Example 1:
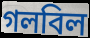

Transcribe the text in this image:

গলবিল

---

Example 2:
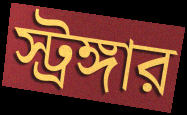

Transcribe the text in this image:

স্ট্রঙ্গার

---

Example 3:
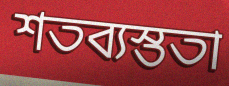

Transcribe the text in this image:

শতব্যস্ততা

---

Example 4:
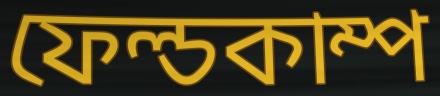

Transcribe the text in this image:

ফেল্ডকাম্প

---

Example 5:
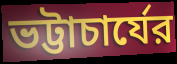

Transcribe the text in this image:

ভট্টাচার্যের